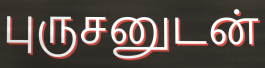
புருசனுடன்